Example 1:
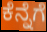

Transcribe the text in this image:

ಕೆನ್ನೆಗೆ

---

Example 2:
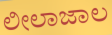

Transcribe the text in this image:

ಲೀಲಾಜಾಲ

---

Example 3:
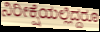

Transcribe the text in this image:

ನಿರೀಕ್ಷೆಯಲ್ಲಿದ್ದರೂ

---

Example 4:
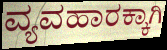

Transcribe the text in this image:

ವ್ಯವಹಾರಕ್ಕಾಗಿ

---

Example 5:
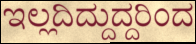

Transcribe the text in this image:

ಇಲ್ಲದಿದ್ದುದ್ದರಿಂದ